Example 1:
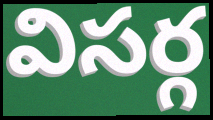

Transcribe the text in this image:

విసర్గ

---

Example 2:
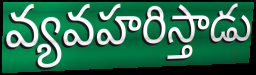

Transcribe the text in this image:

వ్యవహరిస్తాడు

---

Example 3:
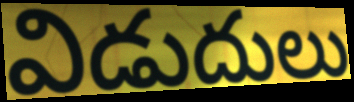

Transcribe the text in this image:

విడుదులు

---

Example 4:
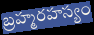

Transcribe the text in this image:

బ్రహ్మరహస్యం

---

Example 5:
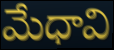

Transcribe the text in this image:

మేధావి